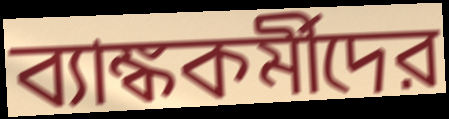
ব্যাঙ্ককর্মীদের